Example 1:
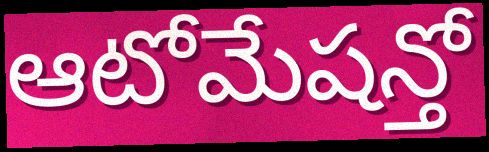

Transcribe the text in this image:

ఆటోమేషన్తో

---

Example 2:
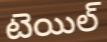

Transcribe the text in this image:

టెయిల్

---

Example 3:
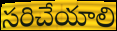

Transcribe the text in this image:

సరిచేయాలి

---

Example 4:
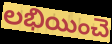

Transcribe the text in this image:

లభియించె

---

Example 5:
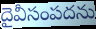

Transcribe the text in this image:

దైవీసంపదను